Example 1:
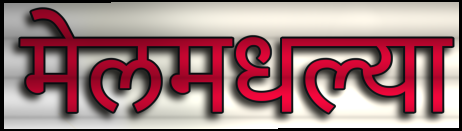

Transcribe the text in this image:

मेलमधल्या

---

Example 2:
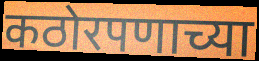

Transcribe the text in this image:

कठोरपणाच्या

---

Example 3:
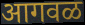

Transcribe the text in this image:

आगवळ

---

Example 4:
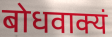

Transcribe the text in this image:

बोधवाक्यं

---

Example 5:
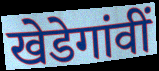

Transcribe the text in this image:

खेडेगांवीं